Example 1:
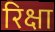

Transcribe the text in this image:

रिक्षा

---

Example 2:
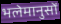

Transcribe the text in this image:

भलेमानुसों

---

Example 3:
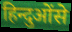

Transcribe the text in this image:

हिन्दुओंसे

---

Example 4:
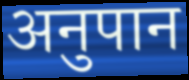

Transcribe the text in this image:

अनुपान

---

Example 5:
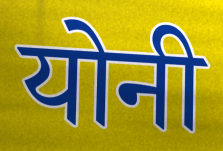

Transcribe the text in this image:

योनी